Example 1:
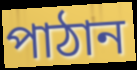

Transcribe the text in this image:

পাঠান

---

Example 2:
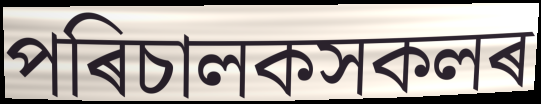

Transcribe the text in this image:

পৰিচালকসকলৰ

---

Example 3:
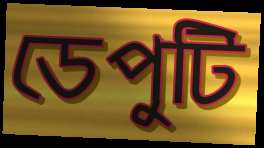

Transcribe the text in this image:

ডেপুটি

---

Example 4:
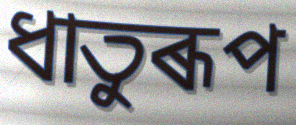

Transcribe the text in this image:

ধাতুৰূপ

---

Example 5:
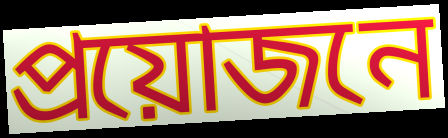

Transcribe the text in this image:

প্ৰয়োজনে